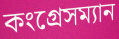
কংগ্রেসম্যান